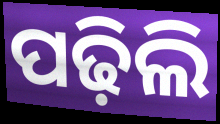
ପଢ଼ିଲି